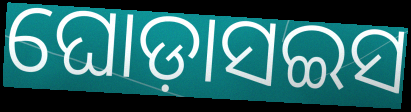
ଘୋଡ଼ାସଇସ